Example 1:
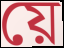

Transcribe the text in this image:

য়ে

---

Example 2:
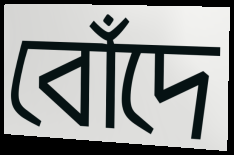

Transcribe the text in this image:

বোঁদে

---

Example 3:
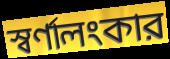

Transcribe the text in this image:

স্বর্ণালংকার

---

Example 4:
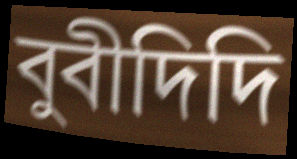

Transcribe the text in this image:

বুবীদিদি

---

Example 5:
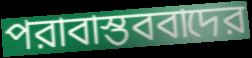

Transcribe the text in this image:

পরাবাস্তববাদের